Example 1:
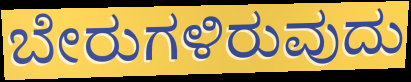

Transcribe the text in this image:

ಬೇರುಗಳಿರುವುದು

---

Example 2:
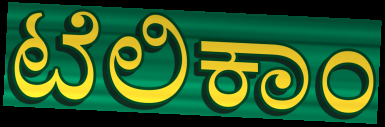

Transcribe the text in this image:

ಟೆಲಿಕಾಂ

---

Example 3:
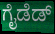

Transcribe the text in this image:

ಗೈಡೆಡ್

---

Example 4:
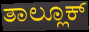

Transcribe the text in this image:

ತಾಲ್ಲೂಕ್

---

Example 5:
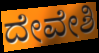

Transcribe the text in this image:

ದೇವೇಶಿ